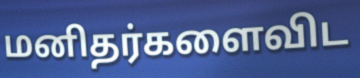
மனிதர்களைவிட